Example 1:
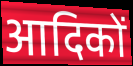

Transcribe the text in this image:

आदिकों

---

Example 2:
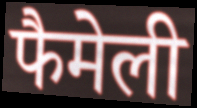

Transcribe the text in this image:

फैमेली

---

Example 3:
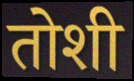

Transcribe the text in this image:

तोशी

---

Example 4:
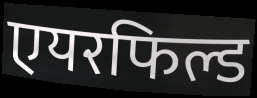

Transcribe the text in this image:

एयरफिल्ड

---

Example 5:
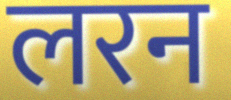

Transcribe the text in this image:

लरन